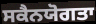
ਸਕੈਨਯੋਗਤਾ